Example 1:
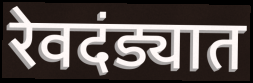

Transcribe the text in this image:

रेवदंड्यात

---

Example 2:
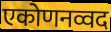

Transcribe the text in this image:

एकोणनव्वद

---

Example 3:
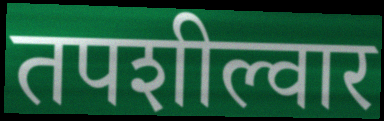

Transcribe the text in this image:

तपशील्वार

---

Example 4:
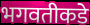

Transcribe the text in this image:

भगवतीकडे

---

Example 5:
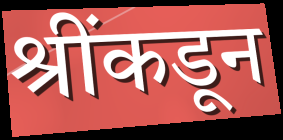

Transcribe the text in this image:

श्रींकडून